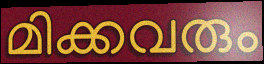
മിക്കവരും